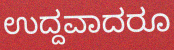
ಉದ್ದವಾದರೂ